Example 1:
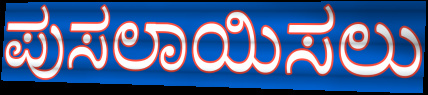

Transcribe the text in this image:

ಪುಸಲಾಯಿಸಲು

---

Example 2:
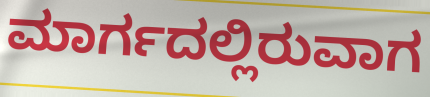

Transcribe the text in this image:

ಮಾರ್ಗದಲ್ಲಿರುವಾಗ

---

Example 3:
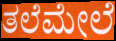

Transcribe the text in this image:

ತಲೆಮೇಲೆ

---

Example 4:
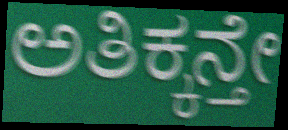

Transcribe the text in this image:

ಅತಿಕ್ಕನ್ತೇ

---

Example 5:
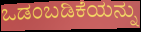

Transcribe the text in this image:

ಒಡಂಬಡಿಕೆಯನ್ನು